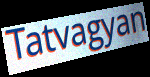
Tatvagyan